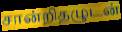
சான்றிதழுடன்